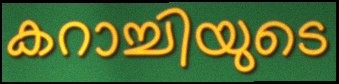
കറാച്ചിയുടെ